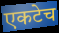
एकटेच